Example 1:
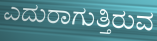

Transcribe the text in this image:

ಎದುರಾಗುತ್ತಿರುವ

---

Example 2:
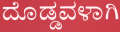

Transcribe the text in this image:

ದೊಡ್ಡವಳಾಗಿ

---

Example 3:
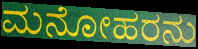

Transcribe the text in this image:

ಮನೋಹರನು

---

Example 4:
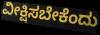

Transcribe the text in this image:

ವೀಕ್ಷಿಸಬೇಕೆಂದು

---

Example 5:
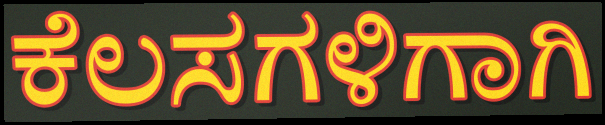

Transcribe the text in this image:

ಕೆಲಸಗಳಿಗಾಗಿ